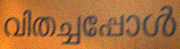
വിതച്ചപ്പോൾ